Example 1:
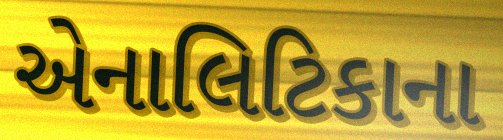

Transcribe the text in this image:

એનાલિટિકાના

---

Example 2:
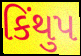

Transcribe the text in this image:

કિંથુપ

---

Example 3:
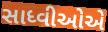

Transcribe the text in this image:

સાધ્વીઓએ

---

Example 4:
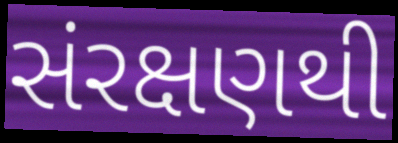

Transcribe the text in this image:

સંરક્ષણથી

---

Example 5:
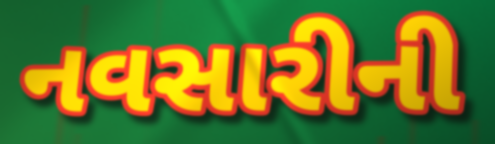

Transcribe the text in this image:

નવસારીની